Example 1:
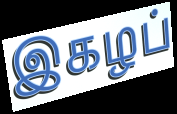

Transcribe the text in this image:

இகழப்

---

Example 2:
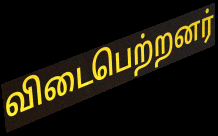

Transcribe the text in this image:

விடைபெற்றனர்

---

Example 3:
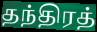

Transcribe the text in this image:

தந்திரத்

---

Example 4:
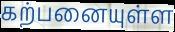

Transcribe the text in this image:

கற்பனையுள்ள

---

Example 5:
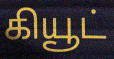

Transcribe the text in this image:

கியூட்